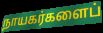
நாயகர்களைப்